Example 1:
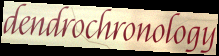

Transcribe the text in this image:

dendrochronology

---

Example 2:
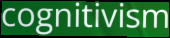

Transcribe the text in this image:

cognitivism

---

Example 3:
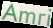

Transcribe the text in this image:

Amri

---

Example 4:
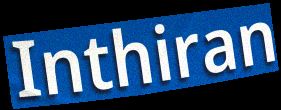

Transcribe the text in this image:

Inthiran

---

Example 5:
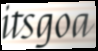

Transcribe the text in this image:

itsgoa